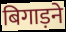
बिगाड़ने